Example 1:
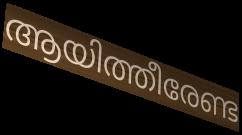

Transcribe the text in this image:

ആയിത്തീരേണ്ട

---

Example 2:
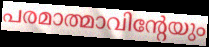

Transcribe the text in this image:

പരമാത്മാവിന്റേയും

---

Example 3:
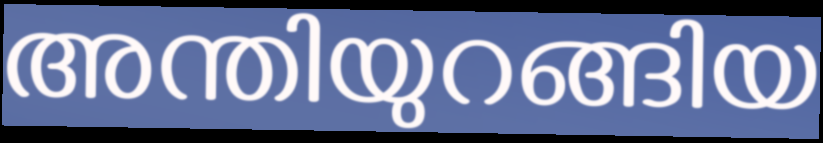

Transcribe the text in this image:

അന്തിയുറങ്ങിയ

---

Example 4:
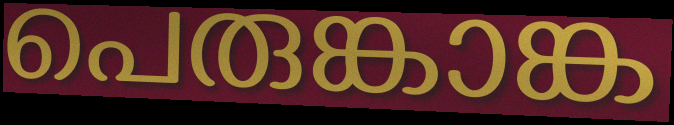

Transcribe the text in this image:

പെരുങ്കാങ്ക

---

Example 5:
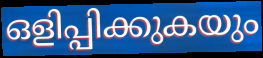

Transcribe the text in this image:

ഒളിപ്പിക്കുകയും